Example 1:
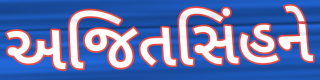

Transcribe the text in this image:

અજિતસિંહને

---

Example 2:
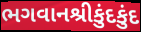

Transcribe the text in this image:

ભગવાનશ્રીકુંદકુંદ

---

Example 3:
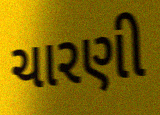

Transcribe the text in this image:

ચારણી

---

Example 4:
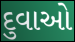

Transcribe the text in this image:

દુવાઓ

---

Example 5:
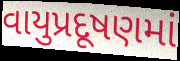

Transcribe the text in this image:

વાયુપ્રદૂષણમાં